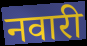
नवारी